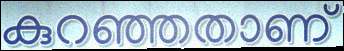
കുറഞ്ഞതാണ്